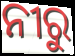
ନୀରୁ